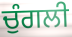
ਚੁੰਗਲੀ